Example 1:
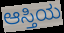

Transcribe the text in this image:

ಆಸ್ತಿಯ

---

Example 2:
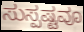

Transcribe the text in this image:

ಸುಸ್ಪಷ್ಟವೂ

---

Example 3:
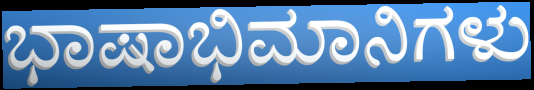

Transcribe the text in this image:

ಭಾಷಾಭಿಮಾನಿಗಳು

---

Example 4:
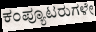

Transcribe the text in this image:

ಕಂಪ್ಯೂಟರುಗಳೇ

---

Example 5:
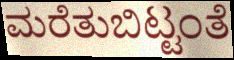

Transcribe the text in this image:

ಮರೆತುಬಿಟ್ಟಂತೆ